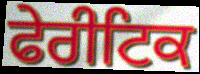
ਫੇਰੀਟਿਕ